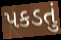
પકડતું